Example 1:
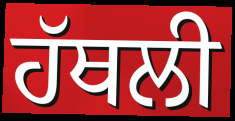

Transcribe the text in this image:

ਹੱਥਲੀ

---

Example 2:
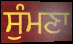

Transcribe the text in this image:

ਸੁੰਮਣਾ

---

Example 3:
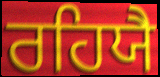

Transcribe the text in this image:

ਰਹਿਯੈ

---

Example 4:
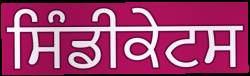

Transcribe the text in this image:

ਸਿੰਡੀਕੇਟਸ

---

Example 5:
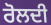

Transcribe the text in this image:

ਰੋਲਦੀ